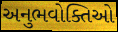
અનુભવોક્તિઓ